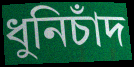
ধুনিচাঁদ